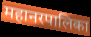
महानरपालिका